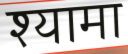
श्यामा